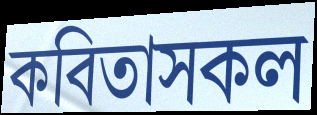
কবিতাসকল